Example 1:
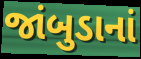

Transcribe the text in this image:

જાંબુડાનાં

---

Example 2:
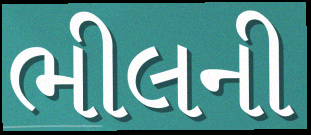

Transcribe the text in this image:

ભીલની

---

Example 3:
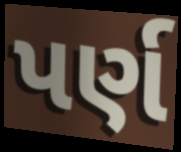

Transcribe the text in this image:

પર્ણ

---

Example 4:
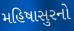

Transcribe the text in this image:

મહિષાસુરનો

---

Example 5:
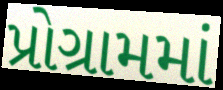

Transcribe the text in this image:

પ્રોગ્રામમાં